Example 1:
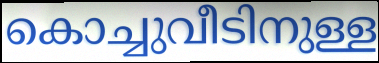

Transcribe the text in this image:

കൊച്ചുവീടിനുള്ള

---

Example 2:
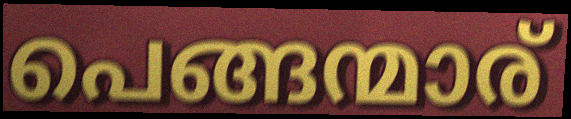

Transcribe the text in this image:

പെങ്ങന്മാര്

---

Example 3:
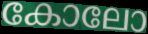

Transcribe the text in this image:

കോലോ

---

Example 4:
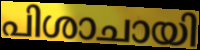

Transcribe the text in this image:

പിശാചായി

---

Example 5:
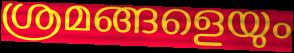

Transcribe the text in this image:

ശ്രമങ്ങളെയും